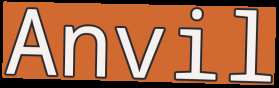
Anvil